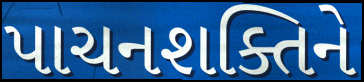
પાચનશક્તિને